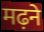
मढ़ने